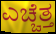
ಎಚ್ಚೆತ್ತ